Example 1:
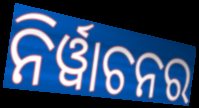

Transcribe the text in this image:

ନିର୍ୱାଚନର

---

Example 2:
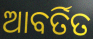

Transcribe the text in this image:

ଆବର୍ତିତ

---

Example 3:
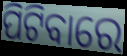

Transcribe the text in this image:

ପିଟିବାରେ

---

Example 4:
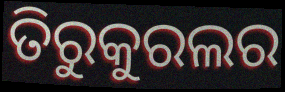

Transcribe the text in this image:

ତିରୁକୁରଲର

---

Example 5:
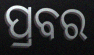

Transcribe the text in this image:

ପ୍ରବର